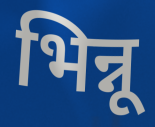
भिन्नू